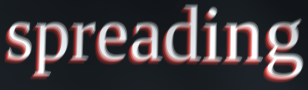
spreading